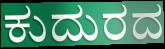
ಕುದುರದ